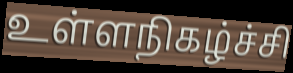
உள்ளநிகழ்ச்சி